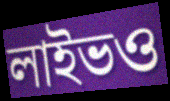
লাইভও